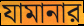
যামানার